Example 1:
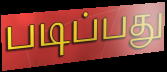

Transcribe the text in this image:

படிப்பது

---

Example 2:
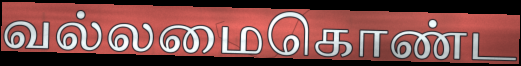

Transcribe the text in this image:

வல்லமைகொண்ட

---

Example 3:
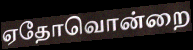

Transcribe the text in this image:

ஏதோவொன்றை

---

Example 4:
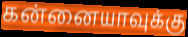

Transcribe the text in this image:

கன்னையாவுக்கு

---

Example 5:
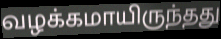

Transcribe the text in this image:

வழக்கமாயிருந்தது